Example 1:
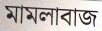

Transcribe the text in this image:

মামলাবাজ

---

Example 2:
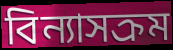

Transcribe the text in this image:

বিন্যাসক্রম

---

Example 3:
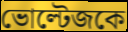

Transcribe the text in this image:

ভোল্টেজকে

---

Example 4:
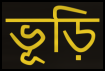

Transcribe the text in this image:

ভূড়ি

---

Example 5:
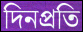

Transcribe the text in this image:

দিনপ্রতি